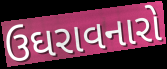
ઉઘરાવનારો